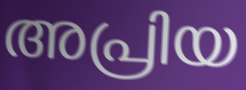
അപ്രിയ